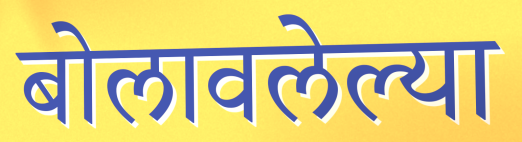
बोलावलेल्या